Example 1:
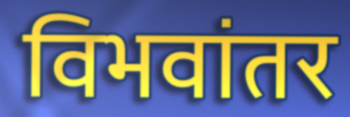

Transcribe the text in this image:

विभवांतर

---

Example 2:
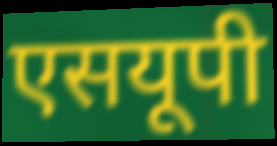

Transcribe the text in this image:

एसयूपी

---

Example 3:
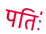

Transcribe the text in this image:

पतिः॑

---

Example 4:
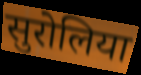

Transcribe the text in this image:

सुरोलिया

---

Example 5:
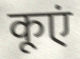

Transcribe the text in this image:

कूएं